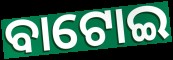
ବାଟୋଇ